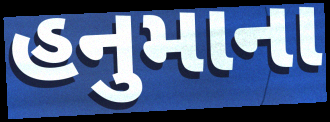
હનુમાના